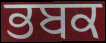
ਭਬਕ